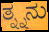
ತ್ನ್ನನು